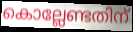
കൊല്ലേണ്ടതിന്